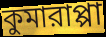
কুমারাপ্পা